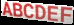
ABCDEF